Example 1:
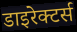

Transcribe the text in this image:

डाइरेक्टर्स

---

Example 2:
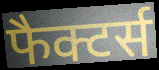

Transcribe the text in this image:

फैक्टर्स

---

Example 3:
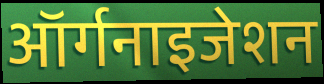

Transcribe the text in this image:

ऑर्गनाइजेशन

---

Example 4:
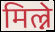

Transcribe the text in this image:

मिल्ने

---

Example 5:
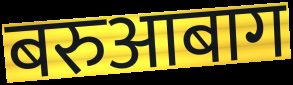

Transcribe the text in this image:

बरुआबाग